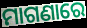
ମାଗଣାରେ